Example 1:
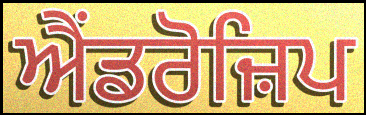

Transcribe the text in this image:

ਐਂਡਰੋਜ਼ਿਪ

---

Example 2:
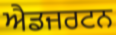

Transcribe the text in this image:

ਐਡਜਰਟਨ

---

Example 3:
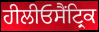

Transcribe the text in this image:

ਹੀਲੀਓਸੈਂਟ੍ਰਿਕ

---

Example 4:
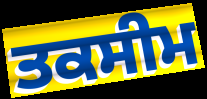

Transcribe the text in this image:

ਤਕਸੀਮ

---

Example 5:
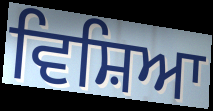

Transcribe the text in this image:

ਵਿਸ਼ਿਆ